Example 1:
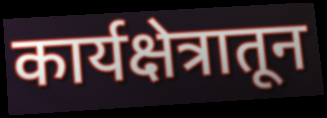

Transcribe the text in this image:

कार्यक्षेत्रातून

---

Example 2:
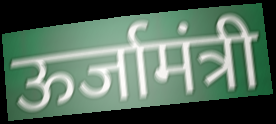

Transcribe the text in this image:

ऊर्जामंत्री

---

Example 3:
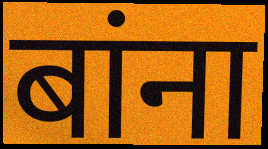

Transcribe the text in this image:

बांना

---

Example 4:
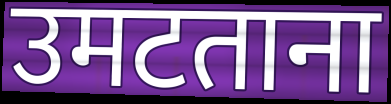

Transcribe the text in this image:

उमटताना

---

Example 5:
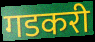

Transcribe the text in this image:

गडकरी